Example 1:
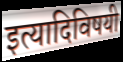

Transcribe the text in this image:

इत्यादिविषयी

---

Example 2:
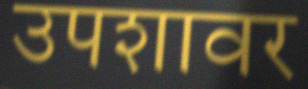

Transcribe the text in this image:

उपशावर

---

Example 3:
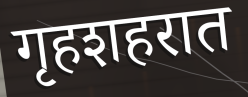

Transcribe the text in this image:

गृहशहरात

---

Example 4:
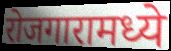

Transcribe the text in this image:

रोजगारामध्ये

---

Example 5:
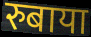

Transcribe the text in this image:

रुबाया